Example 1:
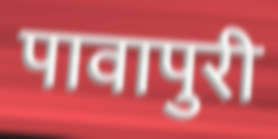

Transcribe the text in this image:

पावापुरी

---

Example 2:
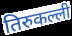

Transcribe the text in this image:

तिरुकल्ली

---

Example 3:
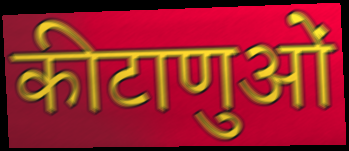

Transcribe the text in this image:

कीटाणुओं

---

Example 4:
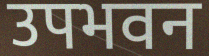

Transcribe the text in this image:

उपभवन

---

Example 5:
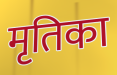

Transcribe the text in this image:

मृतिका